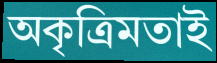
অকৃত্রিমতাই